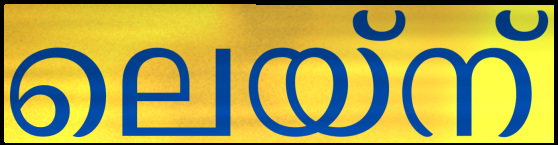
ലെയ്ന്